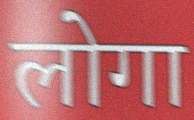
लोगा